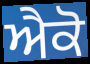
ਐਕੋ